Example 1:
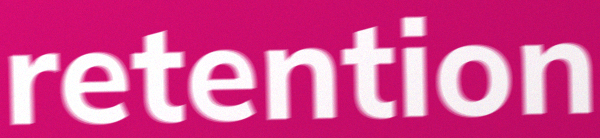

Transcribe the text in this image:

retention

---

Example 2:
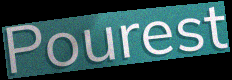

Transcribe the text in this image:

Pourest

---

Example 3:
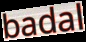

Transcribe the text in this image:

badal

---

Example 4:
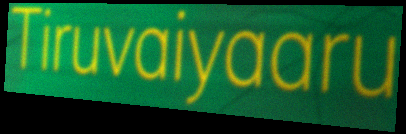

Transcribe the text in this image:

Tiruvaiyaaru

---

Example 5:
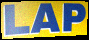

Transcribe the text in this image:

LAP